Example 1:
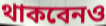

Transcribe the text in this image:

থাকবেনও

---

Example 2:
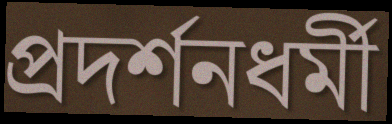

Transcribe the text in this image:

প্রদর্শনধর্মী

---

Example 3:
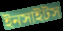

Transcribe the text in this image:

ইনসাইটস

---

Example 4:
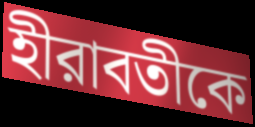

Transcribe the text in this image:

হীরাবতীকে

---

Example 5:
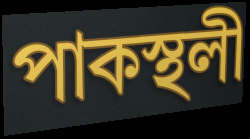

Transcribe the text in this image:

পাকস্থলী